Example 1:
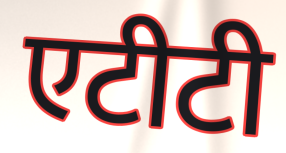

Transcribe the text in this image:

एटीटी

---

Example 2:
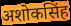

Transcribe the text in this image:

अशोकसिंह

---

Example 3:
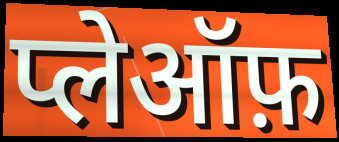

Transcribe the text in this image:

प्लेऑफ़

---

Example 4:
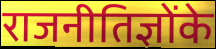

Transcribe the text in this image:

राजनीतिज्ञोंके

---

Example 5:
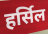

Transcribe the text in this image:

हर्सिल